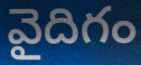
వైదిగం